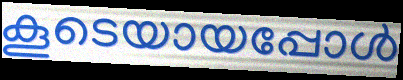
കൂടെയായപ്പോൾ